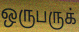
ஒருபருக்